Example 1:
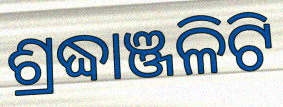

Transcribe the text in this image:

ଶ୍ରଦ୍ଧାଞ୍ଜଳିଟି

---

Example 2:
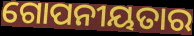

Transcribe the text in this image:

ଗୋପନୀୟତାର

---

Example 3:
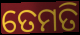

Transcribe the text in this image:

ତେମତି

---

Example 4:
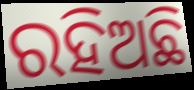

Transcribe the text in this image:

ରହିଅଛି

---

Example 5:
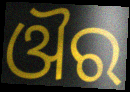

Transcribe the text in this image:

ଔର